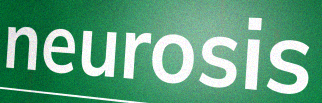
neurosis